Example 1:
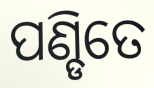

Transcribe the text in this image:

ପଣ୍ଡିତେ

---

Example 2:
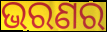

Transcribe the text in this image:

ଭରଣର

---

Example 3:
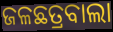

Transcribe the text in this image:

ଜଳଛତ୍ରବାଲା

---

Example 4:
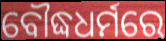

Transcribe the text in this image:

ବୌଦ୍ଧଧର୍ମରେ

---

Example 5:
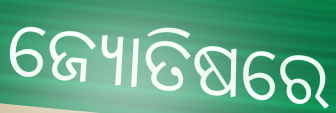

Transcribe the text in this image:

ଜ୍ୟୋତିଷରେ